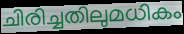
ചിരിച്ചതിലുമധികം